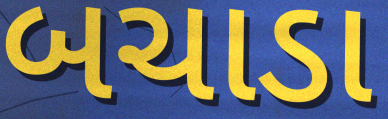
બચાડા